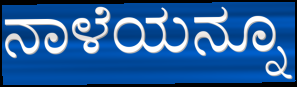
ನಾಳೆಯನ್ನೂ